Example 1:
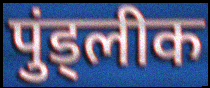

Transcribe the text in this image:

पुंड्लीक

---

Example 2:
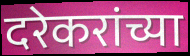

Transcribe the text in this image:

दरेकरांच्या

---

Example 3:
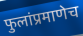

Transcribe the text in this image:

फुलांप्रमाणेच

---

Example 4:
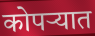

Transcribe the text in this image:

कोपऱ्यात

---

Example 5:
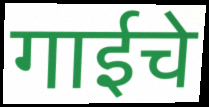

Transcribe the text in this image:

गाईचे